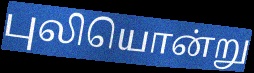
புலியொன்று